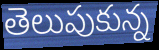
తెలుపుకున్న